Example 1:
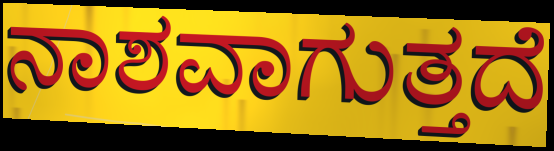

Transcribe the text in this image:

ನಾಶವಾಗುತ್ತದೆ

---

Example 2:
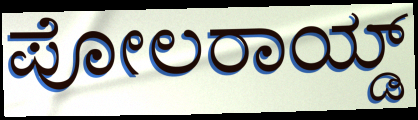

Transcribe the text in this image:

ಪೋಲರಾಯ್ಡ್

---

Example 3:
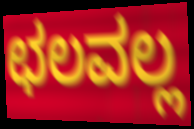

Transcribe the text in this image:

ಛಲವಲ್ಲ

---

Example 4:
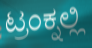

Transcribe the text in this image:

ಟ್ರಂಕ್ನಲ್ಲಿ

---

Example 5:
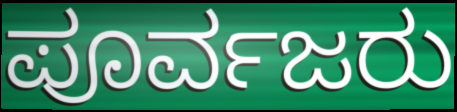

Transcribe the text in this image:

ಪೂರ್ವಜರು